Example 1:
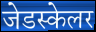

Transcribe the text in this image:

जेडस्केलर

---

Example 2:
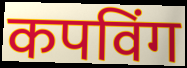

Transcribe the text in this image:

कपविंग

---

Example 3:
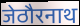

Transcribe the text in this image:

जेठौरनाथ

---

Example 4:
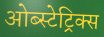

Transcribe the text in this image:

ओब्स्टेट्रिक्स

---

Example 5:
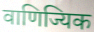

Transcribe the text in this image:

वाणिज्यिक